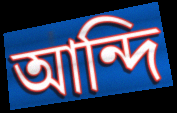
আন্দি